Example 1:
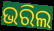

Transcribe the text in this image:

ଭରିଲ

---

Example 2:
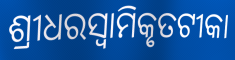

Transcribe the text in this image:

ଶ୍ରୀଧରସ୍ଵାମିକୃତଟୀକା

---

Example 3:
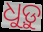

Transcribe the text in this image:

ଧୁଡ଼ୁ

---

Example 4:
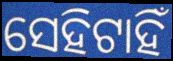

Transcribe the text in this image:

ସେହିଟାହିଁ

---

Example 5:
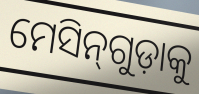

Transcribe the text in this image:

ମେସିନ୍‌ଗୁଡ଼ାକୁ